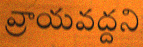
వ్రాయవద్దని